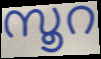
സൂറ